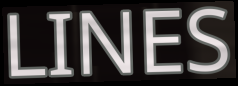
LINES